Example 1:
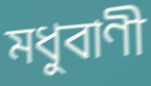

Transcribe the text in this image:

মধুবাণী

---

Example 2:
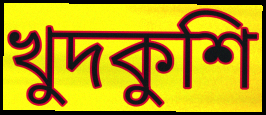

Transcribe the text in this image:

খুদকুশি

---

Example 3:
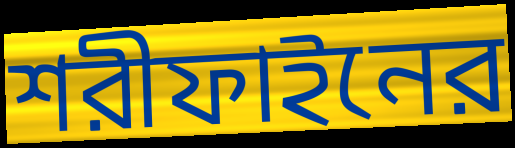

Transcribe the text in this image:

শরীফাইনের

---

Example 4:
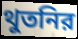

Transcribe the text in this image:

থুতনির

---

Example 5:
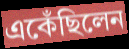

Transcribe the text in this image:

একেঁছিলেন